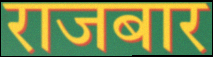
राजबार